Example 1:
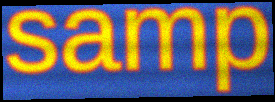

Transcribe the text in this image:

samp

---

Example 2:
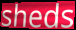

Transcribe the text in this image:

sheds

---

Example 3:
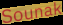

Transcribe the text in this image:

Sounak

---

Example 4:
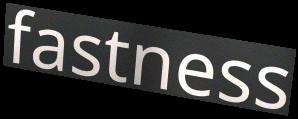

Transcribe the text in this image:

fastness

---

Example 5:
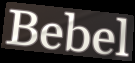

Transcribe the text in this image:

Bebel